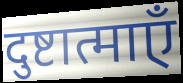
दुष्टात्माएँ